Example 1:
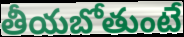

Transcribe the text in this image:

తీయబోతుంటే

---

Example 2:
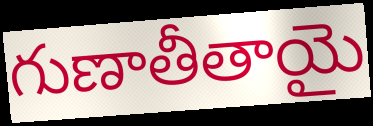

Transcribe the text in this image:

గుణాతీతాయై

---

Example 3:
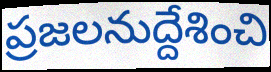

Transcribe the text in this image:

ప్రజలనుద్దేశించి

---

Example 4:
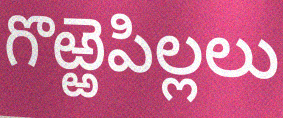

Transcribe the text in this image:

గొఱ్ఱెపిల్లలు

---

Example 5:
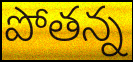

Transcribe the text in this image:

పోతన్న